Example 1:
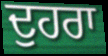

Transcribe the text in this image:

ਦੁਹਰਾ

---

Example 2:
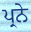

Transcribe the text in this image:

ਪ੍ਰਨੇ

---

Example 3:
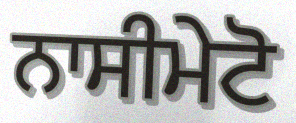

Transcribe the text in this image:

ਨਾਸੀਮੇਟੋ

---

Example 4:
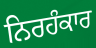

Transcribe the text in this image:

ਨਿਰਹੰਕਾਰ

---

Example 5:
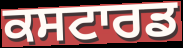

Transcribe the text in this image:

ਕਸਟਾਰਡ